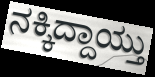
ನಕ್ಕಿದ್ದಾಯ್ತು